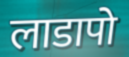
लाडापो